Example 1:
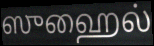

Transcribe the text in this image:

ஸுஹைல்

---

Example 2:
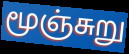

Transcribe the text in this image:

மூஞ்சுறு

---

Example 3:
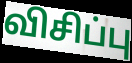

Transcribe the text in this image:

விசிப்பு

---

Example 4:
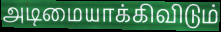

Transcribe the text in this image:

அடிமையாக்கிவிடும்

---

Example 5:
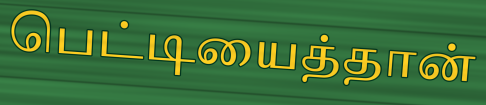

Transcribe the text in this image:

பெட்டியைத்தான்